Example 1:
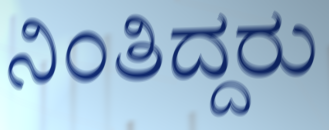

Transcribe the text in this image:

ನಿಂತಿದ್ದರು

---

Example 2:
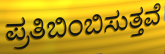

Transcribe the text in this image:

ಪ್ರತಿಬಿಂಬಿಸುತ್ತವೆ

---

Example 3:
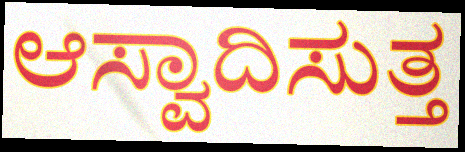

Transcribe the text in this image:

ಆಸ್ವಾದಿಸುತ್ತ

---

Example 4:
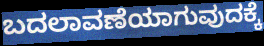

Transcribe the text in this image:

ಬದಲಾವಣೆಯಾಗುವುದಕ್ಕೆ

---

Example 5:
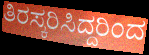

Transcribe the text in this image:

ತಿರಸ್ಕರಿಸಿದ್ದರಿಂದ